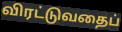
விரட்டுவதைப்